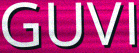
GUVI